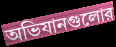
অভিযানগুলোর